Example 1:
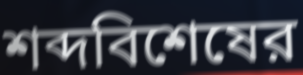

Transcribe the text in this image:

শব্দবিশেষের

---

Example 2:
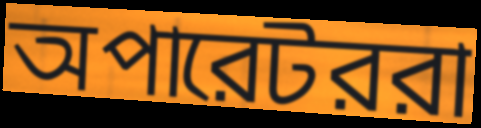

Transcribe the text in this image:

অপারেটররা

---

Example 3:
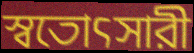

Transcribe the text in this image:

স্বতোৎসারী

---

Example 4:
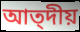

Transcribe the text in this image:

আত্দীয়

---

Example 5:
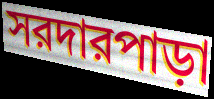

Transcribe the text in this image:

সরদারপাড়া